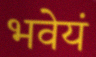
भवेयं